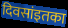
दिवसांइतका